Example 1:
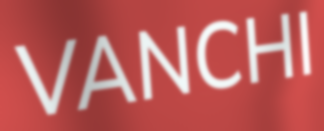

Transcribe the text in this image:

VANCHI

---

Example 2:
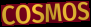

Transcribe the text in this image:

COSMOS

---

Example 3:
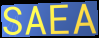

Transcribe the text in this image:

SAEA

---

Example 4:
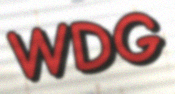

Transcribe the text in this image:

WDG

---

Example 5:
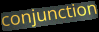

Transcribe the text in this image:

conjunction